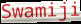
Swamiji